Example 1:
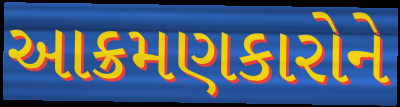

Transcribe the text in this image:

આક્રમણકારોને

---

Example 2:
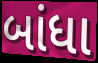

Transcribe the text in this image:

બાંધા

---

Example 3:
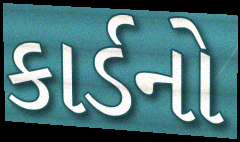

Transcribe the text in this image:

કાર્ડનો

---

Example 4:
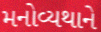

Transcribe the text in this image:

મનોવ્યથાને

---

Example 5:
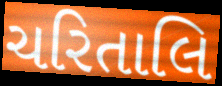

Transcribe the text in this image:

ચરિતાલિ